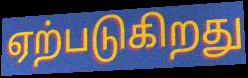
ஏற்படுகிறது